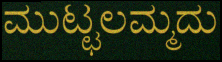
ಮುಟ್ಟಲಮ್ಮದು